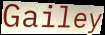
Gailey